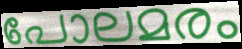
പോലമരം